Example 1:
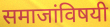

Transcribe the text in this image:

समाजांविषयी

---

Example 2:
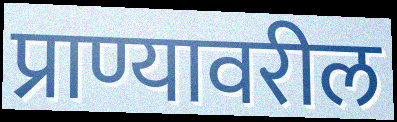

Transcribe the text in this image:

प्राण्यावरील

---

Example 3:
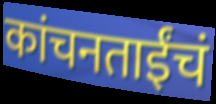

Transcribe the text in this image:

कांचनताईंचं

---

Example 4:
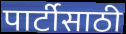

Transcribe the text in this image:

पार्टीसाठी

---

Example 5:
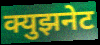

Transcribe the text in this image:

क्युझनेट